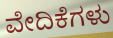
ವೇದಿಕೆಗಳು